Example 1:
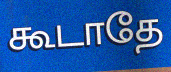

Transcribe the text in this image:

கூடாதே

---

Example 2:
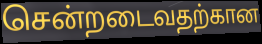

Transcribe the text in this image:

சென்றடைவதற்கான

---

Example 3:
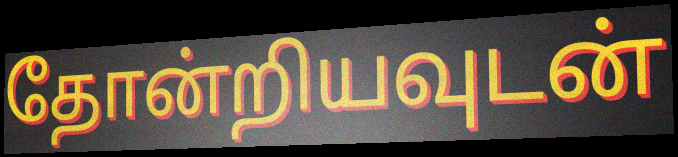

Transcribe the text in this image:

தோன்றியவுடன்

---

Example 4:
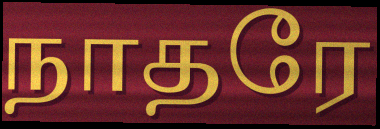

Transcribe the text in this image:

நாதரே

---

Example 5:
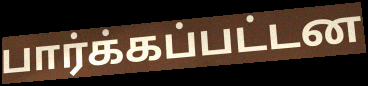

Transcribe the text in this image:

பார்க்கப்பட்டன